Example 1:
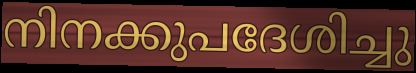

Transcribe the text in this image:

നിനക്കുപദേശിച്ചു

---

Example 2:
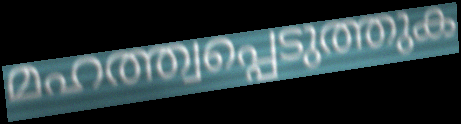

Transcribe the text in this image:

മഹത്ത്വപ്പെടുത്തുക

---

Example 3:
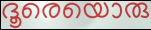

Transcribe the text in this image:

ദൂരെയൊരു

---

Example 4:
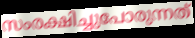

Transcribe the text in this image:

സംരക്ഷിച്ചുപോരുന്നത്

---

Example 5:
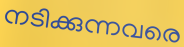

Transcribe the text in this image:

നടിക്കുന്നവരെ